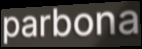
parbona